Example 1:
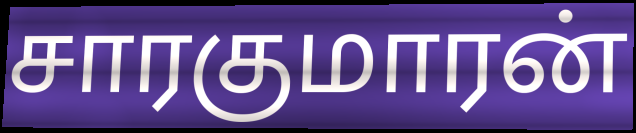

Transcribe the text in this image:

சாரகுமாரன்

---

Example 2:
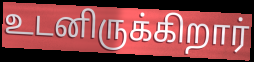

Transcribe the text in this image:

உடனிருக்கிறார்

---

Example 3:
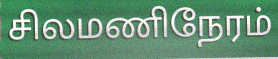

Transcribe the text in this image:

சிலமணிநேரம்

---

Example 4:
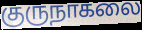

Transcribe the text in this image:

குருநாகலை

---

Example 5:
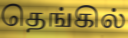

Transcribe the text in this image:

தெங்கில்